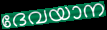
ദേവയാന